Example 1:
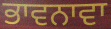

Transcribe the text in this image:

ਭਾਵਨਾਵਾ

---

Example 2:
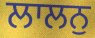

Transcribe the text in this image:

ਲਾਲਨੁ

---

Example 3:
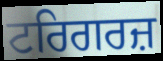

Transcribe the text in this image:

ਟਰਿਗਰਜ਼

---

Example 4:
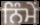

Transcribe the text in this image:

ਨਿੰਮੇਂ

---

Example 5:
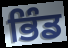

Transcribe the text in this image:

ਭਿੰਡ